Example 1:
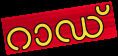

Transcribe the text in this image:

റാഡ്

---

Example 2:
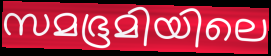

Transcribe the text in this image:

സമഭൂമിയിലെ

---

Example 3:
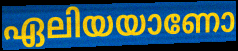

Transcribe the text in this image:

ഏലിയയാണോ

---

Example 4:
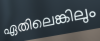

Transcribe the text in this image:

ഏതിലെങ്കിലും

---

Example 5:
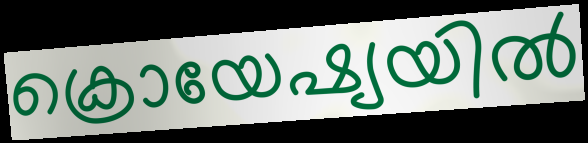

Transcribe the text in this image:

ക്രൊയേഷ്യയിൽ